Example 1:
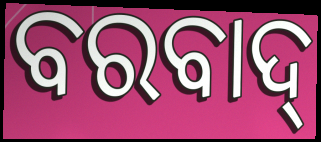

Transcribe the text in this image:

ବରବାଦ୍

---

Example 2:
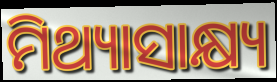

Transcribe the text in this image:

ମିଥ୍ୟାସାକ୍ଷ୍ୟ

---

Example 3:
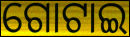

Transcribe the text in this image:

ଗୋଟାଇ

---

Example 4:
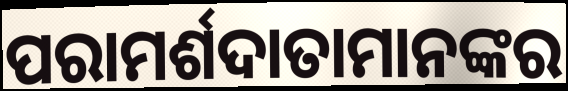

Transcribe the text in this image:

ପରାମର୍ଶଦାତାମାନଙ୍କର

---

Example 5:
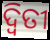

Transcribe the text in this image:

ଦ୍ୱିତୀ